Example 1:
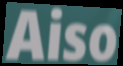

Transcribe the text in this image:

Aiso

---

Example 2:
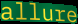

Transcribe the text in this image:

allure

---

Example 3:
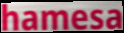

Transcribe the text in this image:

hamesa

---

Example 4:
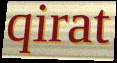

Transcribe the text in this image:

qirat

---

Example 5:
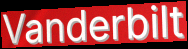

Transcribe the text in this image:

Vanderbilt